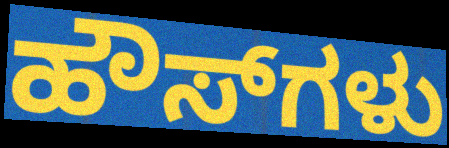
ಹೌಸ್‌ಗಳು